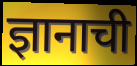
ज्ञानाची